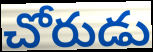
చోరుడు